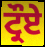
ਟ੍ਰੌਏ